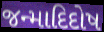
જન્માદિદોષ